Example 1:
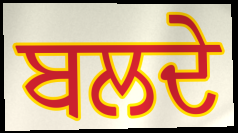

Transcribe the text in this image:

ਬਲਦੇ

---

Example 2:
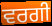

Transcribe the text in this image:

ਵਰਗੀ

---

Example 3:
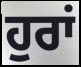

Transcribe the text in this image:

ਹੁਰਾਂ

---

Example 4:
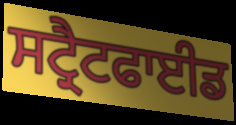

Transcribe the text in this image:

ਸਟ੍ਰੈਟਫਾਈਡ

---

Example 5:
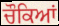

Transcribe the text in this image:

ਚੌਕਿਆਂ